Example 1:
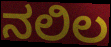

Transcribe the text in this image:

ನಲಿಲ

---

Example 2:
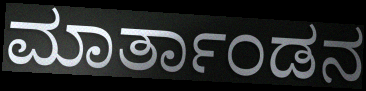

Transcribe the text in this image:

ಮಾರ್ತಾಂಡನ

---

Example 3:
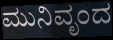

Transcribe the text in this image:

ಮುನಿವೃಂದ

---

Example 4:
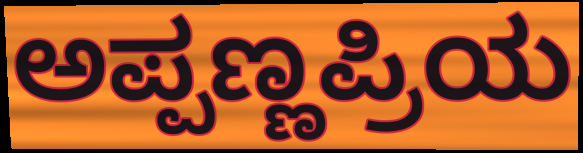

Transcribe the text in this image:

ಅಪ್ಪಣ್ಣಪ್ರಿಯ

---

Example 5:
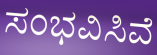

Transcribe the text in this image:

ಸಂಭವಿಸಿವೆ